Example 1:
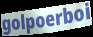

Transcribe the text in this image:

golpoerboi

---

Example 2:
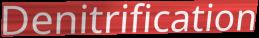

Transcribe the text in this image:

Denitrification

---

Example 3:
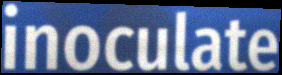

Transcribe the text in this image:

inoculate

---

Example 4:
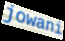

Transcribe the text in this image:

jowani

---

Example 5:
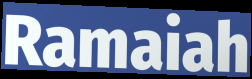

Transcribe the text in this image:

Ramaiah